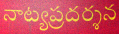
నాట్యప్రదర్శన